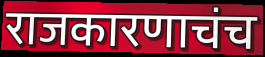
राजकारणाचंच